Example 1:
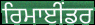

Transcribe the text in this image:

ਰਿਮਾਈਂਡਰ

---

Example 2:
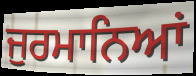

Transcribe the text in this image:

ਜੁਰਮਾਨਿਆਂ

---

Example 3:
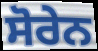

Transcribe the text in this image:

ਸੋਰੇਨ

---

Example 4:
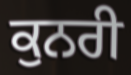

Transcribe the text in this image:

ਕੁਨਰੀ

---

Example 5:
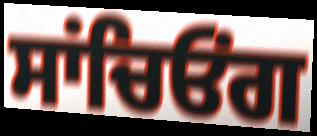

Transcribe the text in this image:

ਸਾਂਚਿਓਂਗ